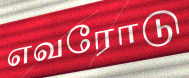
எவரோடு